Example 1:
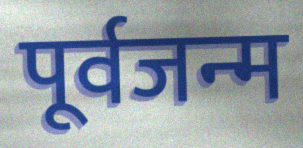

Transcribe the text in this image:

पूर्वजन्म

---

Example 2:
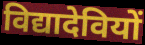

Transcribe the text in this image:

विद्यादेवियों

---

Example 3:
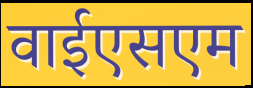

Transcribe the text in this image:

वाईएसएम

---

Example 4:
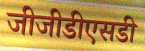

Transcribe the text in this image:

जीजीडीएसडी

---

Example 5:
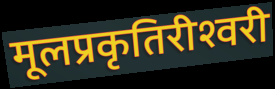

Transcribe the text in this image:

मूलप्रकृतिरीश्वरी